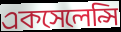
একসেলেন্সি